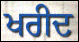
ਖਰੀਦ